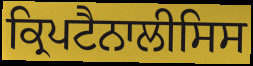
ਕ੍ਰਿਪਟੈਨਾਲੀਸਿਸ